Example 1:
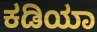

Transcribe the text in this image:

ಕಡಿಯಾ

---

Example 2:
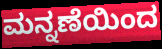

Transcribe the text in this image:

ಮನ್ನಣೆಯಿಂದ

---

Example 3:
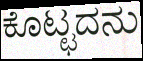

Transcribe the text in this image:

ಕೊಟ್ಟದನು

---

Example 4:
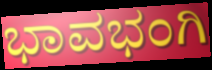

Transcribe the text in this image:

ಭಾವಭಂಗಿ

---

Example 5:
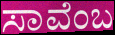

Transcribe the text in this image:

ಸಾವೆಂಬ